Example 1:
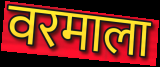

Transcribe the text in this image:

वरमाला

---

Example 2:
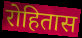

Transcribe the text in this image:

रोहितास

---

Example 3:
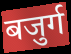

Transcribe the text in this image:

बजुर्ग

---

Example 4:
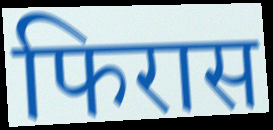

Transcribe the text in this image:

फिरास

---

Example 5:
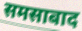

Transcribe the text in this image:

समसाबाद